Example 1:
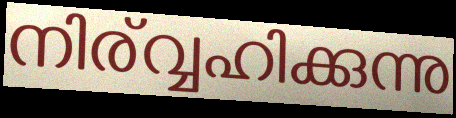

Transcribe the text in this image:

നിര്വ്വഹിക്കുന്നു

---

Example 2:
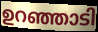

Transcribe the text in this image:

ഉറഞ്ഞാടി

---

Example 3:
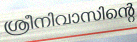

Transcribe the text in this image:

ശ്രീനിവാസിന്റെ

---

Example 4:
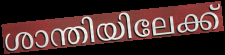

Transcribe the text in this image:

ശാന്തിയിലേക്ക്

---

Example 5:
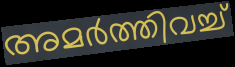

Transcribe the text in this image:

അമർത്തിവച്ച്